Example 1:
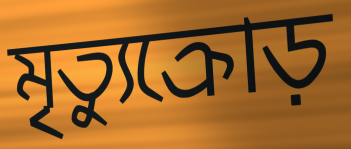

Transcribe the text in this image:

মৃত্যুক্রোড়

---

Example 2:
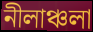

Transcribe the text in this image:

নীলাঞ্চলা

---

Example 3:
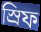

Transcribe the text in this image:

স্রিফ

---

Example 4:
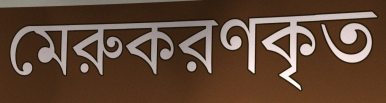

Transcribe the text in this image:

মেরুকরণকৃত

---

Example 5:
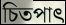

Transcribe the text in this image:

চিতপাৎ